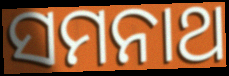
ସମନାଥ